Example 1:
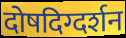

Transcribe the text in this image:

दोषदिग्दर्शन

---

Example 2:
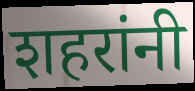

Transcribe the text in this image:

शहरांनी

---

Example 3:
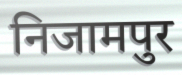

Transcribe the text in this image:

निजामपुर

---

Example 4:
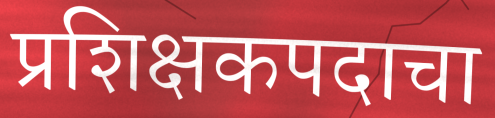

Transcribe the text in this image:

प्रशिक्षकपदाचा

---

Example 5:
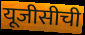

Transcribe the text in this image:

यूजीसीची